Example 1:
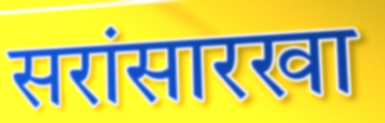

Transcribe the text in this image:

सरांसारखा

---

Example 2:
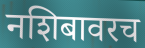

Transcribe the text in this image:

नशिबावरच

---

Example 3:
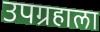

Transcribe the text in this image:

उपग्रहाला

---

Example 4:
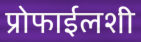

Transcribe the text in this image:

प्रोफाईलशी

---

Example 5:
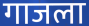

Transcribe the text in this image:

गाजला